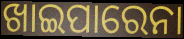
ଖାଇପାରେନା